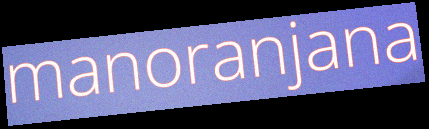
manoranjana